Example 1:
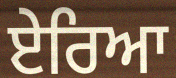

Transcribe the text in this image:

ਏਰਿਆ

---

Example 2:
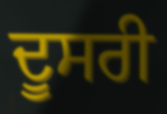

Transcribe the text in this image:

ਦੂਸਰੀ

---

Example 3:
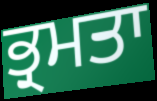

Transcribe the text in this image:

ਭ੍ਰਮਤਾ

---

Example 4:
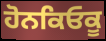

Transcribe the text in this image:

ਹੋਨਕਿਓਕੂ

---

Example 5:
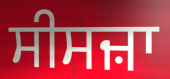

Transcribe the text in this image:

ਸੀਸਜ਼ਾ